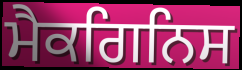
ਮੈਕਗਿਨਿਸ